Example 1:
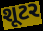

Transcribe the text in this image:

શૂટર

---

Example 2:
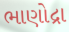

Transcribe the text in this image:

ભાણોદ્રા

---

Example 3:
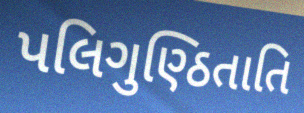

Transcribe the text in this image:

પલિગુણ્ઠિતાતિ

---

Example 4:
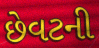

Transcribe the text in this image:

છેવટની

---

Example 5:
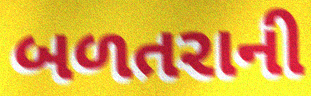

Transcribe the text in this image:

બળતરાની